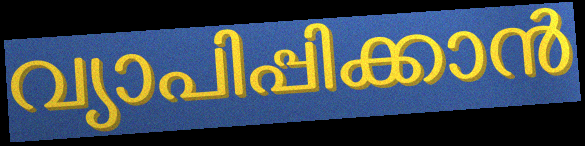
വ്യാപിപ്പിക്കാൻ